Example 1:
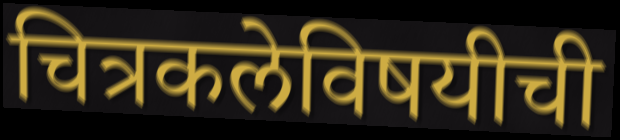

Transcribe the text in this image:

चित्रकलेविषयीची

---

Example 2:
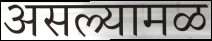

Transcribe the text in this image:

असल्यामळ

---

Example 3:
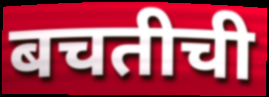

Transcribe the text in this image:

बचतीची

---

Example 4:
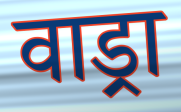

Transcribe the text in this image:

वाड्रा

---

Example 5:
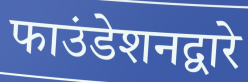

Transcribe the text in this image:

फाउंडेशनद्वारे